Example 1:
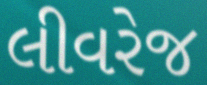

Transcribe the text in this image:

લીવરેજ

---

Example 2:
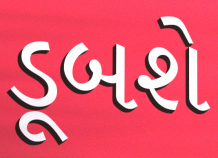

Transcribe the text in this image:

ડૂબશે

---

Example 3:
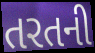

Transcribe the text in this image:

તરતની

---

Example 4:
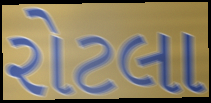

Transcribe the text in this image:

રોટલા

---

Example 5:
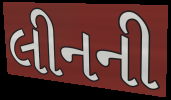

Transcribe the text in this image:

લીનની